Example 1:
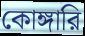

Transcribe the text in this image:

কোঙ্গারি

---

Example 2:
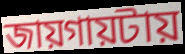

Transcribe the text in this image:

জায়গায়টায়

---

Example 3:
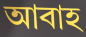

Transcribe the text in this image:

আবাহ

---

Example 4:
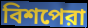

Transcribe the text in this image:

বিশপেরা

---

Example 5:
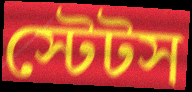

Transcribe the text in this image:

স্টেটস